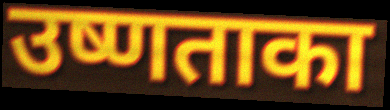
उष्णताका